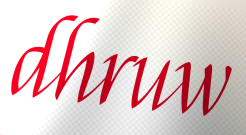
dhruw